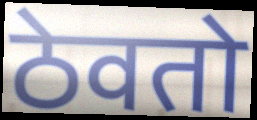
ठेवतो